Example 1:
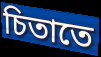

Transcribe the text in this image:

চিতাতে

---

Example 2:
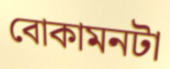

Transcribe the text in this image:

বোকামনটা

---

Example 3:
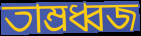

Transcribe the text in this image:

তাম্রধ্বজ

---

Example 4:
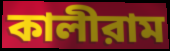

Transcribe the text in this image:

কালীরাম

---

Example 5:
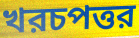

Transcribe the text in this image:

খরচপত্তর